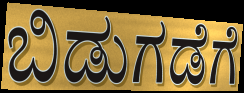
ಬಿಡುಗಡೆಗೆ